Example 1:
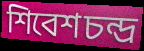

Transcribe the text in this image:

শিবেশচন্দ্র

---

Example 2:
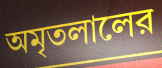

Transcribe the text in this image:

অমৃতলালের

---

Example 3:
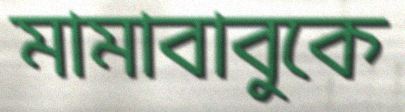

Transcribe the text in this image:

মামাবাবুকে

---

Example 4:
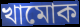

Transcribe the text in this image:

খামোক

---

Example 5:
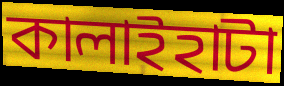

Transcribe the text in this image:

কালাইহাটা